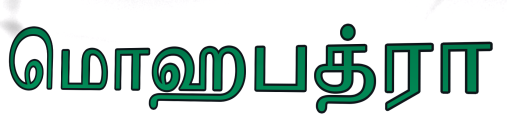
மொஹபத்ரா